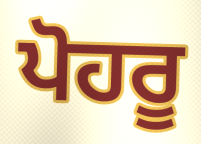
ਪੋਹਰੂ